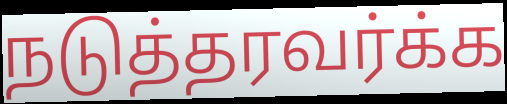
நடுத்தரவர்க்க